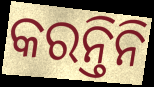
କରନ୍ତିନି